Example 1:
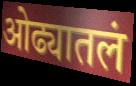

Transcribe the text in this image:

ओढ्यातलं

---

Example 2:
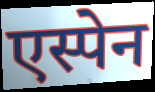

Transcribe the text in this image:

एस्पेन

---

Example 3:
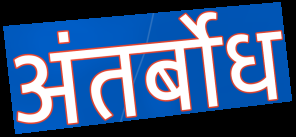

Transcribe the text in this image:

अंतर्बोध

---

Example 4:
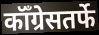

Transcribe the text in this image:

कॉँग्रेसतर्फे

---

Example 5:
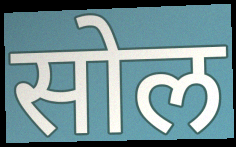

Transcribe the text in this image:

सोल